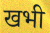
खभी